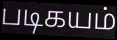
படிகயம்